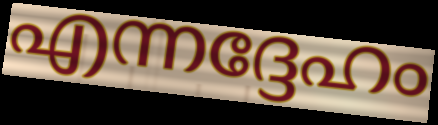
എന്നദ്ദേഹം